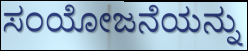
ಸಂಯೋಜನೆಯನ್ನು